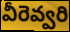
వీరెవ్వరి